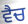
ਵੈਚ